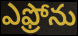
ఎఫ్రోను